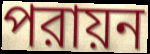
পরায়ন